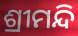
ଶ୍ରୀମନ୍ଦି